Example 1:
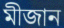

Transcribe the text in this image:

মীজান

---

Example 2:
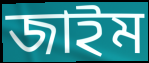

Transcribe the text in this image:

জাইম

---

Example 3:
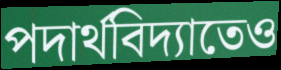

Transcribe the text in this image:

পদার্থবিদ্যাতেও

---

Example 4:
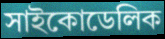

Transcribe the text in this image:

সাইকোডেলিক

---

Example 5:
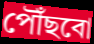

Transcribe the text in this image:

পৌঁছবো